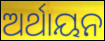
ଅର୍ଥାୟନ